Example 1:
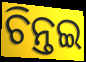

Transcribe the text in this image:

ଚିନ୍ତଇ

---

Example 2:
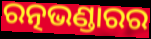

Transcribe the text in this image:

ରତ୍ନଭଣ୍ଡାରର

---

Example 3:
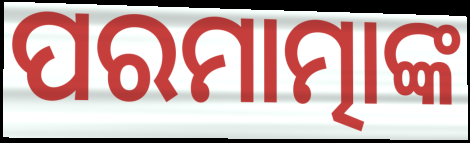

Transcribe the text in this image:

ପରମାତ୍ମାଙ୍କ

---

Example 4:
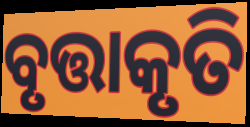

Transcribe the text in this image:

ବୃତ୍ତାକୃତି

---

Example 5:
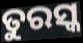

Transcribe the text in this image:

ତୁରସ୍କ